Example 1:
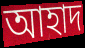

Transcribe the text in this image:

আহাদ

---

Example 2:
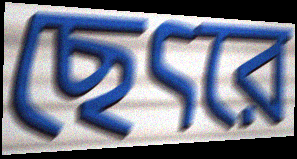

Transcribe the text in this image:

ছেৎরে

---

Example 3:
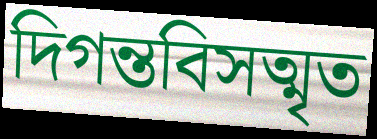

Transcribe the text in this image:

দিগন্তবিসত্মৃত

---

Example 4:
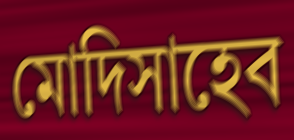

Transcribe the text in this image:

মোদিসাহেব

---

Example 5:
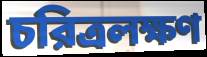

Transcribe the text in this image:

চরিত্রলক্ষণ